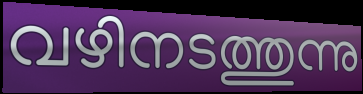
വഴിനടത്തുന്നു